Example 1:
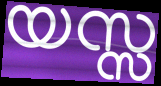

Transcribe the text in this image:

യസ്സ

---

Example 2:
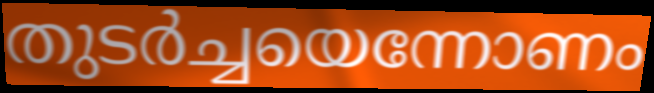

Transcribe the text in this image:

തുടർച്ചയെന്നോണം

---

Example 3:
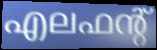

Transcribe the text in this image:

എലഫന്റ്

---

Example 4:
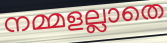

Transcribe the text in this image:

നമ്മളല്ലാതെ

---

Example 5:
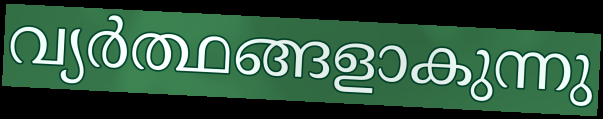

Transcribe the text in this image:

വ്യർത്ഥങ്ങളാകുന്നു